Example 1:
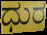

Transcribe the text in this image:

ಧುರ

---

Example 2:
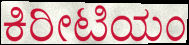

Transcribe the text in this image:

ಕಿರೀಟಿಯಂ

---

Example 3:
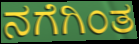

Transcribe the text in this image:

ನಗೆಗಿಂತ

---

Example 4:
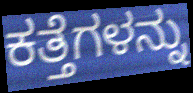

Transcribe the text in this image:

ಕತ್ತೆಗಳನ್ನು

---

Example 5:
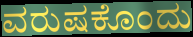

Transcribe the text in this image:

ವರುಷಕೊಂದು